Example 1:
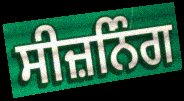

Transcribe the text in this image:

ਸੀਜ਼ਨਿੰਗ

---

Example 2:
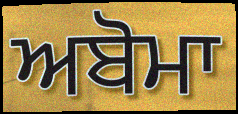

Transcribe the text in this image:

ਅਬੋਮਾ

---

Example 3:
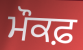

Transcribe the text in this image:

ਮੌਕਫ਼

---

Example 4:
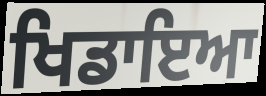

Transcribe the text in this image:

ਖਿਡਾਇਆ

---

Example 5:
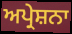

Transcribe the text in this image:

ਅਪ੍ਰੇਸ਼ਨਾ